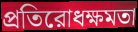
প্রতিরোধক্ষমতা